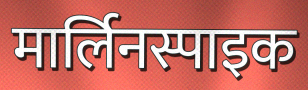
मार्लिनस्पाइक